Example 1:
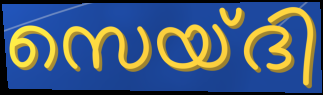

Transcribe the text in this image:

സെയ്ദി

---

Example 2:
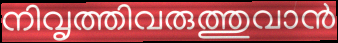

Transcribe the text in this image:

നിവൃത്തിവരുത്തുവാൻ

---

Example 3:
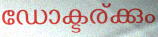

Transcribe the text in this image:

ഡോക്ടര്ക്കും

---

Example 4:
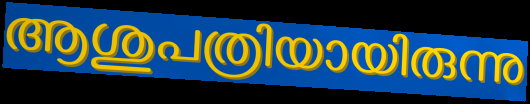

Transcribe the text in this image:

ആശുപത്രിയായിരുന്നു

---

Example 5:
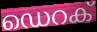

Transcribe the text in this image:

ഡെറക്